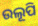
ଉଲୂପି